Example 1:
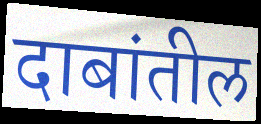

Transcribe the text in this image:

दाबांतील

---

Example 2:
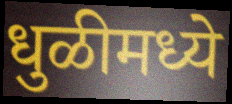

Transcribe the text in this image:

धुळीमध्ये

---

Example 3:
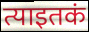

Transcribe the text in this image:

त्याइतकं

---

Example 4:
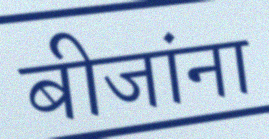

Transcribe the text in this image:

बीजांना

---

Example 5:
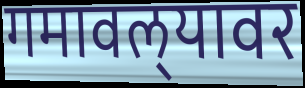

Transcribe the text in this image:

गमावल्यावर